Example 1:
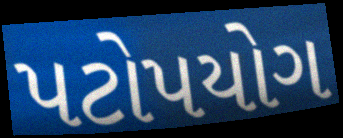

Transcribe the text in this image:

પટોપયોગ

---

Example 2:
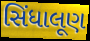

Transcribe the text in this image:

સિંધાલૂણ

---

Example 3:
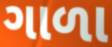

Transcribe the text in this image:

ગાળા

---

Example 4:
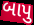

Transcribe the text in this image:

બાપુ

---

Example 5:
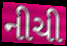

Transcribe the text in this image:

નીચી